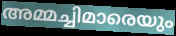
അമ്മച്ചിമാരെയും